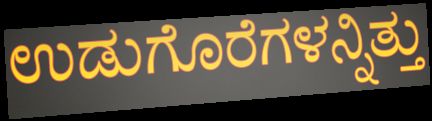
ಉಡುಗೊರೆಗಳನ್ನಿತ್ತು